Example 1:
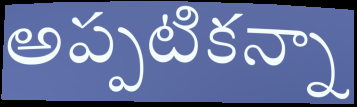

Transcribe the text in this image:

అప్పటికన్నా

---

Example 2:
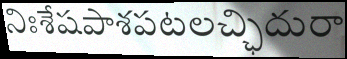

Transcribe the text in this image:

నిఃశేషపాశపటలచ్ఛిదురా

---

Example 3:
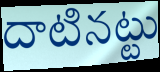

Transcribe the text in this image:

దాటినట్టు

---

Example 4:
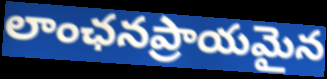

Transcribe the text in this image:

లాంఛనప్రాయమైన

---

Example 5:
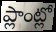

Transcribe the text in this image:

ప్లాంట్లో